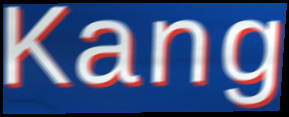
Kang